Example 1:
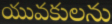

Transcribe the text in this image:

యువకులను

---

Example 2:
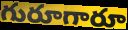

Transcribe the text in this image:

గురూగారూ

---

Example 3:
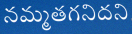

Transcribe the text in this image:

నమ్మతగనిదని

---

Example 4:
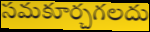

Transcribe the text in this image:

సమకూర్చగలదు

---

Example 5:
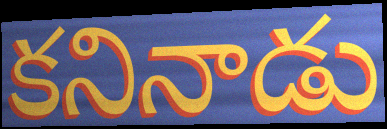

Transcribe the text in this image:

కనినాడు